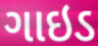
ગાઇડ